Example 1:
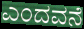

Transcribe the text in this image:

ಎಂದವನೆ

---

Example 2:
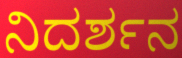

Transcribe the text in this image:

ನಿದರ್ಶನ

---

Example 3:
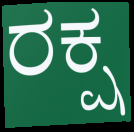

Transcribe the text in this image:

ರಕ್ಷ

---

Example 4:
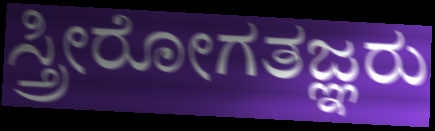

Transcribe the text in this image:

ಸ್ತ್ರೀರೋಗತಜ್ಞರು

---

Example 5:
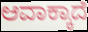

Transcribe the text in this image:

ಆವಾಕ್ಕಾದೆ